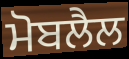
ਮੋਬਲੈਲ